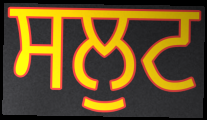
ਸਲੁਟ